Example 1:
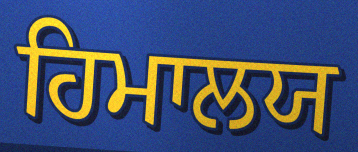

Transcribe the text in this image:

ਹਿਮਾਲਯ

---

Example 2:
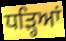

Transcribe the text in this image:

ਧੜ੍ਹਿਆਂ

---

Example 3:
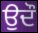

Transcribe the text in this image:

ਉਦੌ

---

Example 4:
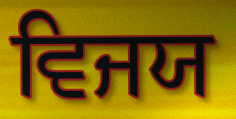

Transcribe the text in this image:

ਵਿਜਯ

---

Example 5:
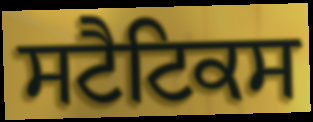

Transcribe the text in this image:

ਸਟੈਟਿਕਸ